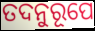
ତଦନୁରୂପେ